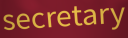
secretary